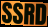
SSRD